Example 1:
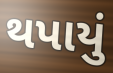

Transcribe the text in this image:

થપાયું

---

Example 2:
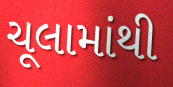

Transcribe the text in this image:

ચૂલામાંથી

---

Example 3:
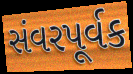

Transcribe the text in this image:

સંવરપૂર્વક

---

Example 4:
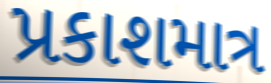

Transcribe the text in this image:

પ્રકાશમાત્ર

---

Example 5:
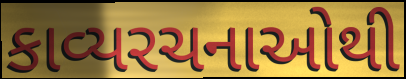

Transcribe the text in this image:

કાવ્યરચનાઓથી